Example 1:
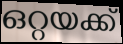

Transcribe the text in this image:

ഒറ്റയക്ക്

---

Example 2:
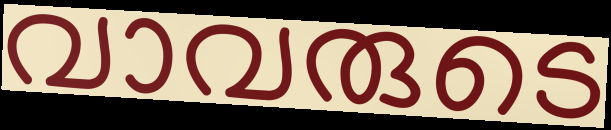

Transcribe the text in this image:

വാവരുടെ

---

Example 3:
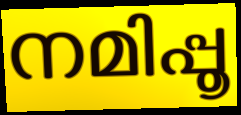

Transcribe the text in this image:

നമിപ്പൂ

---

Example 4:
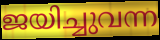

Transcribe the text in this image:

ജയിച്ചുവന്ന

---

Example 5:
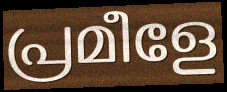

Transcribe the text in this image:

പ്രമീളേ